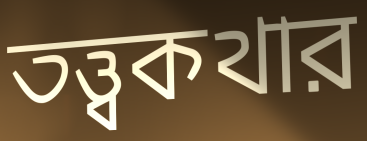
তত্ত্বকথার